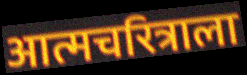
आत्मचरित्राला